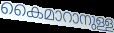
കൈമാറാനുള്ള